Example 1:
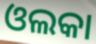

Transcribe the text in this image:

ଓଲକା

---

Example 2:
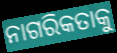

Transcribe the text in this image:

ନାଗରିକତାକୁ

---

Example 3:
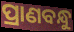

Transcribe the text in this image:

ପ୍ରାଣବନ୍ଧୁ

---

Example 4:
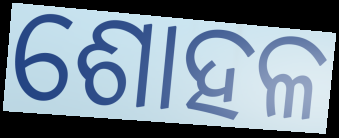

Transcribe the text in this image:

ଶୋହଳ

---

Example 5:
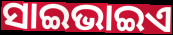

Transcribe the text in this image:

ସାଇଭାଇଏ